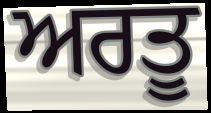
ਅਰਤੂ